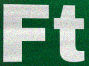
Ft